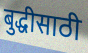
बुद्धीसाठी